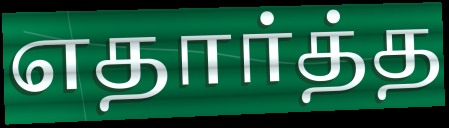
எதார்த்த